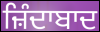
ਜ਼ਿੰਦਾਬਾਦ